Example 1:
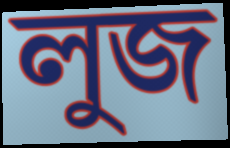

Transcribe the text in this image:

লুজ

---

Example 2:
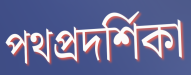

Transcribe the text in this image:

পথপ্রদর্শিকা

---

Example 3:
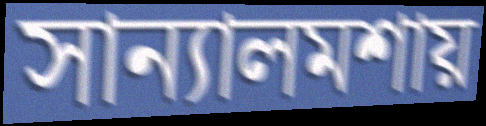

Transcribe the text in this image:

সান্যালমশায়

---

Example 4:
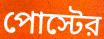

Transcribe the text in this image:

পোস্টের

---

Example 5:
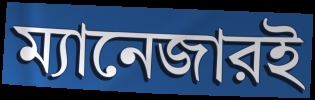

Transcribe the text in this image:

ম্যানেজারই